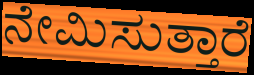
ನೇಮಿಸುತ್ತಾರೆ